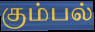
கும்பல்